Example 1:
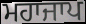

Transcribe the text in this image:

ਮਹਾਜਾਪ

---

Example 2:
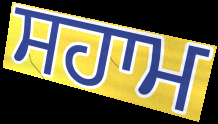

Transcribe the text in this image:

ਸਹਾਮ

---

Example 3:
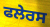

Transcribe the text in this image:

ਫਲੇਰਸ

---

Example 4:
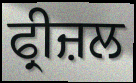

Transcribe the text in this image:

ਫ੍ਰੀਜ਼ਲ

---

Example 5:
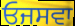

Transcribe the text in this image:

ਓਜਸਵਾ